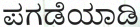
ಪಗಡೆಯಾಡಿ